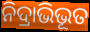
ନିଦ୍ରାଭିଭୂତ